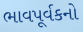
ભાવપૂર્વકનો